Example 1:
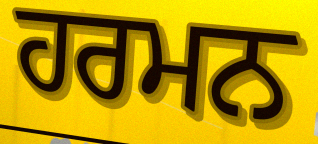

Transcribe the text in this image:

ਹਰਮਨ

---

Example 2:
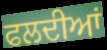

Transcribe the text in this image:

ਫਲਦੀਆਂ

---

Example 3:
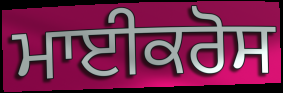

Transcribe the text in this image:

ਮਾਈਕਰੋਸ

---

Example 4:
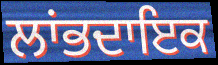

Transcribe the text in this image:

ਲਾਂਭਦਾਇਕ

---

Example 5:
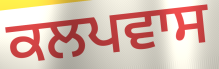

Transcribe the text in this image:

ਕਲਪਵਾਸ